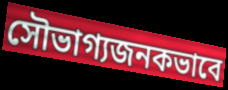
সৌভাগ্যজনকভাবে